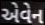
એવેન